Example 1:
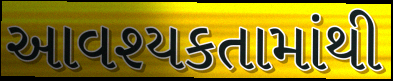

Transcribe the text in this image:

આવશ્યકતામાંથી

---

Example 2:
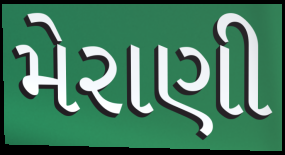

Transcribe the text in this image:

મેરાણી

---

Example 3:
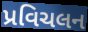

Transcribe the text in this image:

પ્રવિચલન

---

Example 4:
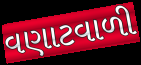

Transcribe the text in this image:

વણાટવાળી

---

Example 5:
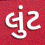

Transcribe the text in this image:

લુંટ